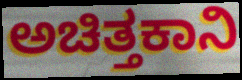
ಅಚಿತ್ತಕಾನಿ